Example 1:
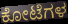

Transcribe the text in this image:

ಕೋಟೆಗಳ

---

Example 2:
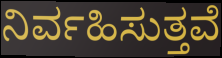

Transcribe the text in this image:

ನಿರ್ವಹಿಸುತ್ತವೆ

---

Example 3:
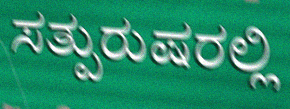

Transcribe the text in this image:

ಸತ್ಪುರುಷರಲ್ಲಿ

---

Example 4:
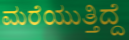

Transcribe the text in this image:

ಮರೆಯುತ್ತಿದ್ದೆ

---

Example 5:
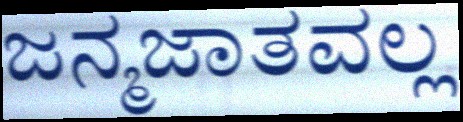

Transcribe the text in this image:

ಜನ್ಮಜಾತವಲ್ಲ